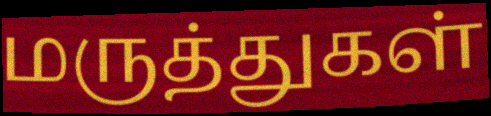
மருத்துகள்